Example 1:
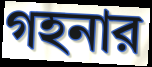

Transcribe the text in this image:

গহনার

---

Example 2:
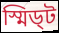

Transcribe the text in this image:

স্মিড্ট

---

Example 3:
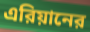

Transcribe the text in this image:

এরিয়ানের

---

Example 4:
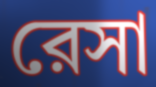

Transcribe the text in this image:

রেসা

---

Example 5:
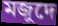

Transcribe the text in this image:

মজুদে